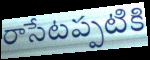
రాసేటప్పటికి